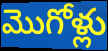
మొగోళ్లు